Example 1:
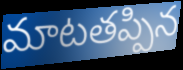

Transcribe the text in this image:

మాటతప్పిన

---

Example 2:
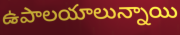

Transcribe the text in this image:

ఉపాలయాలున్నాయి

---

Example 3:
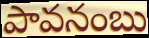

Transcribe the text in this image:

పావనంబు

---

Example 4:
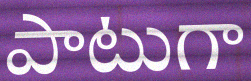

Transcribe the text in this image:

పాటుగా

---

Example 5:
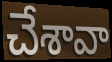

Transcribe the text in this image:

చేశావా